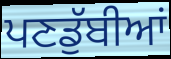
ਪਣਡੁੱਬੀਆਂ